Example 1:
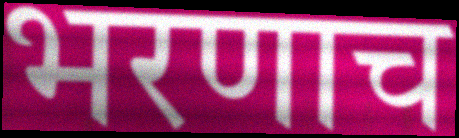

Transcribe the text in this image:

भरणाच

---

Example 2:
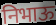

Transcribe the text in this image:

निभाऊ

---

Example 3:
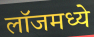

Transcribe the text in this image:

लॉजमध्ये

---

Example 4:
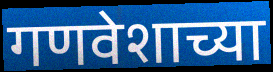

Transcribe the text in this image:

गणवेशाच्या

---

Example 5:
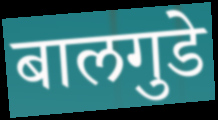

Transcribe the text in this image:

बालगुडे